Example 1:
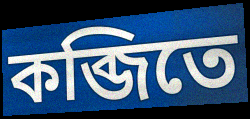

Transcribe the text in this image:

কব্জিতে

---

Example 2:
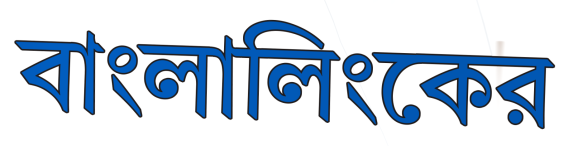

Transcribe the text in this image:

বাংলালিংকের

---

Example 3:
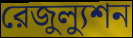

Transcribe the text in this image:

রেজুল্যুশন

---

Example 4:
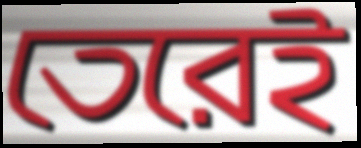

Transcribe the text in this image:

তেরেই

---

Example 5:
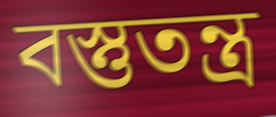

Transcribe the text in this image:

বস্তুতন্ত্র